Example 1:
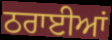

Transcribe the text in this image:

ਠਰਾਈਆਂ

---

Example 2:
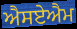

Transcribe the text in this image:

ਐਸਏਐਮ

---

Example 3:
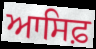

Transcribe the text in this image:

ਆਸਿਫ਼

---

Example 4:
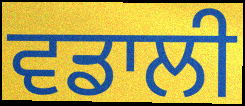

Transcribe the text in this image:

ਵਡਾਲੀ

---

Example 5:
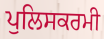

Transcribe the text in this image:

ਪੁਲਿਸਕਰਮੀ